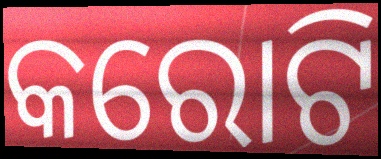
କରୋଟି